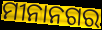
ମୀନାନଗର